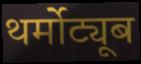
थर्मोट्यूब